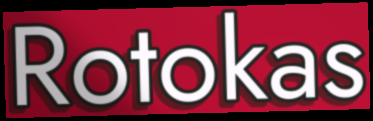
Rotokas